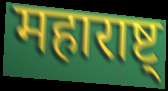
महाराष्ट्